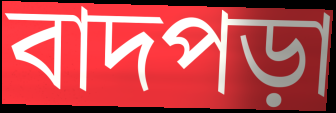
বাদপড়া